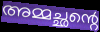
അമ്മച്ഛന്റെ